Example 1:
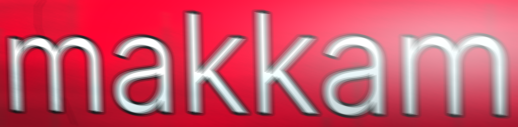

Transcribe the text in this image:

makkam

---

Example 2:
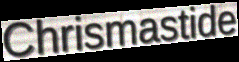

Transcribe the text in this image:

Chrismastide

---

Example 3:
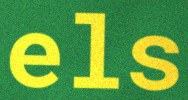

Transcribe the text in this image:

els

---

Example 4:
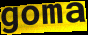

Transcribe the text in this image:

goma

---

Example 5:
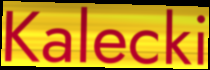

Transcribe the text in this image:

Kalecki